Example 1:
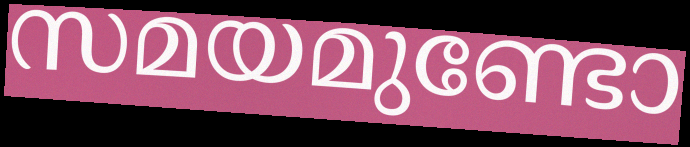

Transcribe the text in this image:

സമയമുണ്ടോ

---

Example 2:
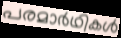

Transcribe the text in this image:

പരമാർഥികൾ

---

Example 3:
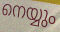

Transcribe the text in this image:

നെയ്യും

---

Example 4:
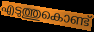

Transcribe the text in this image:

എടുത്തുകൊണ്ട്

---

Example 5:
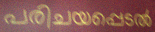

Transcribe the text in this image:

പരിചയപ്പെടൽ